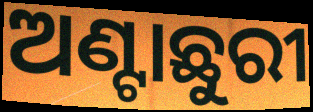
ଅଣ୍ଟାଛୁରୀ